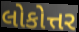
લોકોત્તર